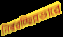
নিৰৱচ্ছিন্নভাৱে